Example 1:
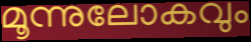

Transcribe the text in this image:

മൂന്നുലോകവും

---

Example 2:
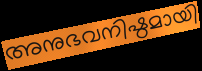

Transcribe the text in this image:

അനുഭവനിഷ്ഠമായി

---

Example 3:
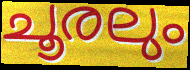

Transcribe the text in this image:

ചൂരലും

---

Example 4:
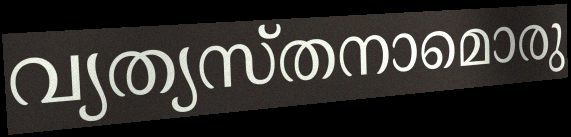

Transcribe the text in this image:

വ്യത്യസ്തനാമൊരു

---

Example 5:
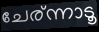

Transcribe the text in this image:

ചേര്ന്നാടൂ